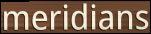
meridians